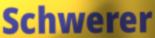
Schwerer